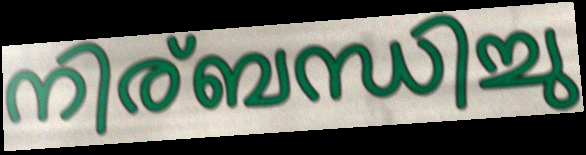
നിര്ബന്ധിച്ചു